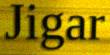
Jigar